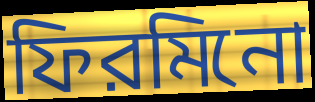
ফিরমিনো